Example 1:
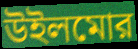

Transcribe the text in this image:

উইলমোর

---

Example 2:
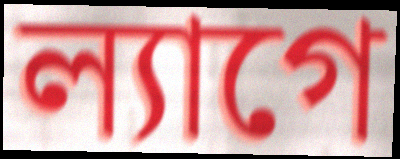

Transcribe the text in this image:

ল্যাগে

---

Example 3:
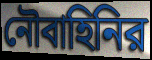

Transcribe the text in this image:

নৌবাহিনির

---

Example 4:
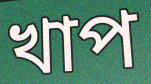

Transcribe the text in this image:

খাপ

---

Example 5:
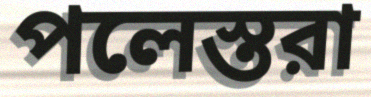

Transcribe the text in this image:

পলেস্তরা